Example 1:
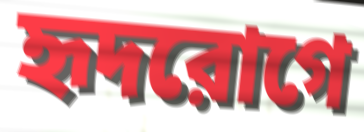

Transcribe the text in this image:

হৃদরোগে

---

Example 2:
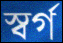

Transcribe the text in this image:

স্বর্গ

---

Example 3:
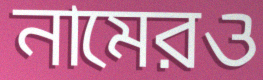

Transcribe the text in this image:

নামেরও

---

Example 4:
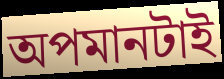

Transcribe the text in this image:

অপমানটাই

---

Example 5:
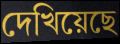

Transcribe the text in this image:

দেখিয়েছে